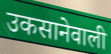
उकसानेवाली